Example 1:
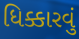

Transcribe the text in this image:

ધિક્કારવું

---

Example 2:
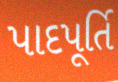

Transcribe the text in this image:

પાદપૂર્તિ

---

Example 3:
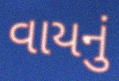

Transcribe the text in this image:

વાયનું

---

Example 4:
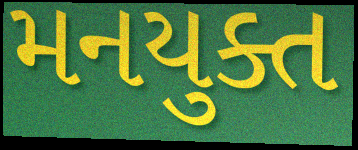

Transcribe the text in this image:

મનયુક્ત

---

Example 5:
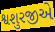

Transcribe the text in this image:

શ્વશુરજીએ